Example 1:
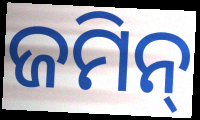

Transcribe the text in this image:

ଜମିନ୍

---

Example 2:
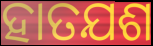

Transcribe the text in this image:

ହାତଯଶ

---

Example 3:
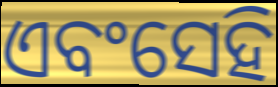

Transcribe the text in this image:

ଏବଂସେହି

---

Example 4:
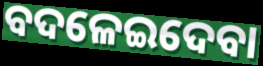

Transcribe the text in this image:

ବଦଳେଇଦେବା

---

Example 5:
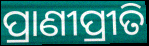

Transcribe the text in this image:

ପ୍ରାଣୀପ୍ରୀତି